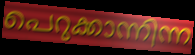
പെറുക്കാന്നിന്ന